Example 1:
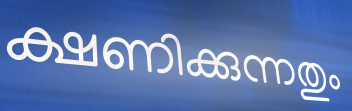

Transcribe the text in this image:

ക്ഷണിക്കുന്നതും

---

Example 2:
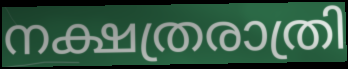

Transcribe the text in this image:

നക്ഷത്രരാത്രി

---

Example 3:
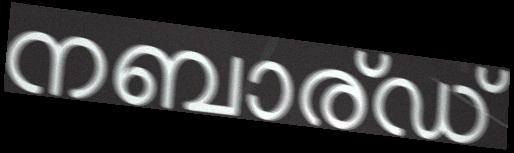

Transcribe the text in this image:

നബാര്ഡ്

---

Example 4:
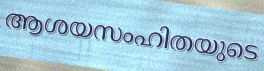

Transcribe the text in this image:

ആശയസംഹിതയുടെ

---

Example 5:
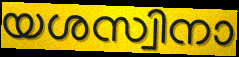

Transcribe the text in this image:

യശസ്വിനാ